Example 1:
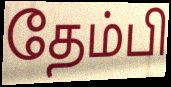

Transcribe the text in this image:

தேம்பி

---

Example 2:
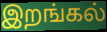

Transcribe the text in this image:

இறங்கல்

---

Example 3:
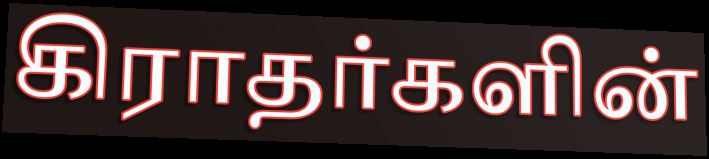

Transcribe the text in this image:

கிராதர்களின்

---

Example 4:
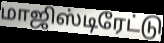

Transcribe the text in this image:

மாஜிஸ்டிரேட்டு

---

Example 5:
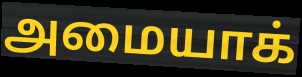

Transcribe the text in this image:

அமையாக்